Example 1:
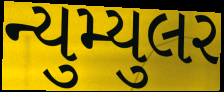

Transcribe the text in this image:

ન્યુમ્યુલર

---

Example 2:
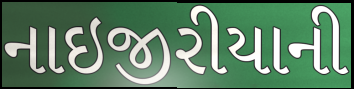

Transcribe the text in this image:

નાઇજીરીયાની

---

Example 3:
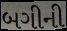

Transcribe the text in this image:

બગીની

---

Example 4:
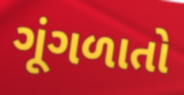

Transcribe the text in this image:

ગૂંગળાતો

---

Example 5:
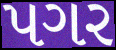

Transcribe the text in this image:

પગર